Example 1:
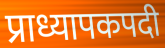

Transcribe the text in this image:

प्राध्यापकपदी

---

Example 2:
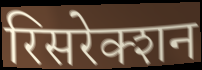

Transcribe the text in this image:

रिसरेक्शन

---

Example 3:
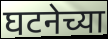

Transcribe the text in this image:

घटनेच्या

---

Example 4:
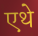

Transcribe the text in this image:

एथे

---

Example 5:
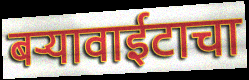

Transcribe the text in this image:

बऱ्यावाईटाचा